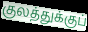
குலத்துக்குப்